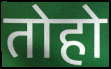
तोहो